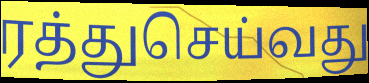
ரத்துசெய்வது